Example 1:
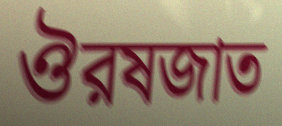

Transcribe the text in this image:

ঔরষজাত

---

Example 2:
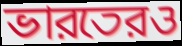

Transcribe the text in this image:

ভারতেরও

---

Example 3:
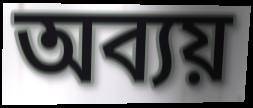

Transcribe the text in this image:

অব্যয়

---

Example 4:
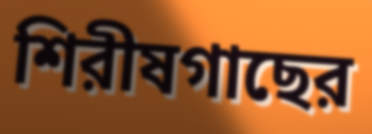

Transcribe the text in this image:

শিরীষগাছের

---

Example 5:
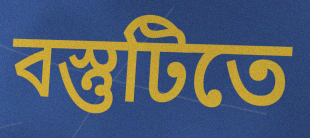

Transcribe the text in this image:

বস্তুটিতে